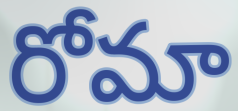
రోమా